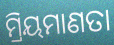
ମ୍ରିୟମାଣତା